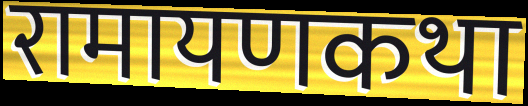
रामायणकथा